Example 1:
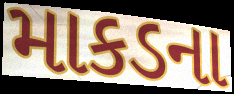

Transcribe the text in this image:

માકડના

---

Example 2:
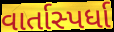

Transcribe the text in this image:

વાર્તાસ્પર્ધા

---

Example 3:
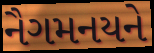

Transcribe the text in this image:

નૈગમનયને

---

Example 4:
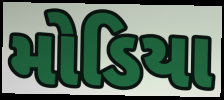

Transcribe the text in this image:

મોડિયા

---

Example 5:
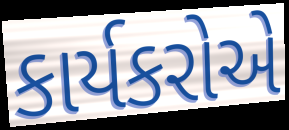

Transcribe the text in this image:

કાર્યકરોએ